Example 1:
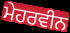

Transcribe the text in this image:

ਮੇਹਰਵੀਨ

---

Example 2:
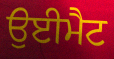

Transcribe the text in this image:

ਉਈਮੈਟ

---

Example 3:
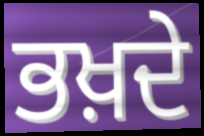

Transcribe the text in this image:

ਭਖ਼ਦੇ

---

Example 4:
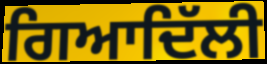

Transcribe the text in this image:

ਗਿਆਦਿੱਲੀ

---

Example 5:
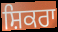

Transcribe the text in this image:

ਸ਼ਿਕਰਾ